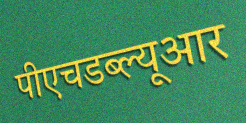
पीएचडब्ल्यूआर